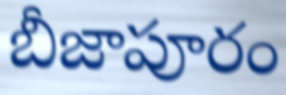
బీజాపూరం